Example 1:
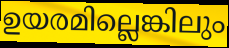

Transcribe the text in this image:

ഉയരമില്ലെങ്കിലും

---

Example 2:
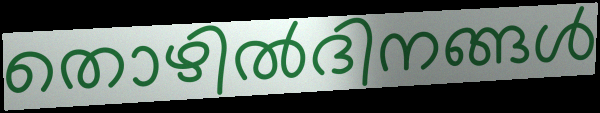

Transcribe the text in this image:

തൊഴിൽദിനങ്ങൾ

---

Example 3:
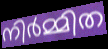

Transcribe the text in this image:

നിർമ്മിത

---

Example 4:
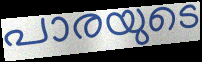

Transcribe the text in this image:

പാരയുടെ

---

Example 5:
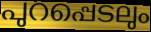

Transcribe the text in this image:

പുറപ്പെടലും